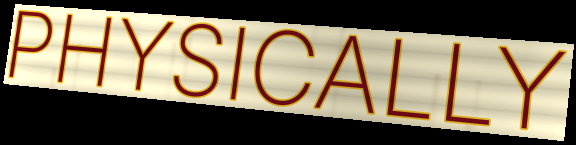
PHYSICALLY